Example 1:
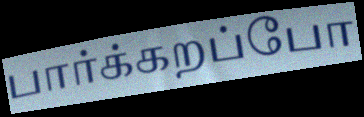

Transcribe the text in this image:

பார்க்கறப்போ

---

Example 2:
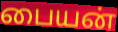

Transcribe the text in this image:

பையன்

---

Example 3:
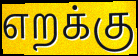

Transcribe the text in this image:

எறக்கு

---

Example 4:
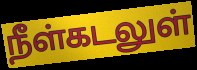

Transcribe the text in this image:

நீள்கடலுள்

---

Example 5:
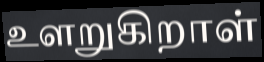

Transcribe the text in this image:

உளறுகிறாள்